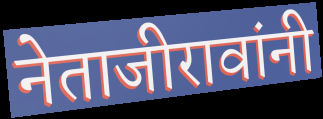
नेताजीरावांनी